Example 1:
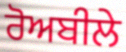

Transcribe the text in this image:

ਰੋਅਬੀਲੇ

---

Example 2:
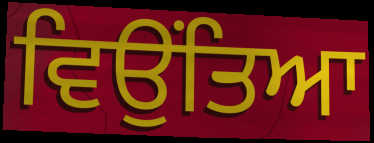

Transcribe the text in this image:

ਵਿਉਂਤਿਆ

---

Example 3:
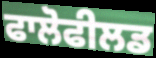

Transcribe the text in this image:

ਫਾਲੋਫੀਲਡ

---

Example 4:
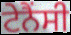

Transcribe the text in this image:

ਟੇਨੈਂਸੀ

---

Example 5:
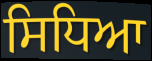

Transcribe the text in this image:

ਸਿਧਿਆ